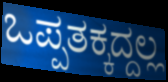
ಒಪ್ಪತಕ್ಕದ್ದಲ್ಲ